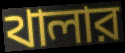
থালার